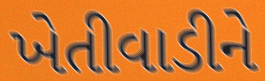
ખેતીવાડીને